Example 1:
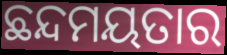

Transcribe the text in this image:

ଛନ୍ଦମୟତାର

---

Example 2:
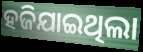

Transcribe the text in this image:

ହଜିଯାଇଥିଲା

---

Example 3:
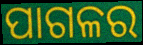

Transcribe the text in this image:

ପାଗଳର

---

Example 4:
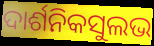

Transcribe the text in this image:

ଦାର୍ଶନିକସୁଲଭ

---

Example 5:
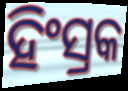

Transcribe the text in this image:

ହିଂସ୍ରକ